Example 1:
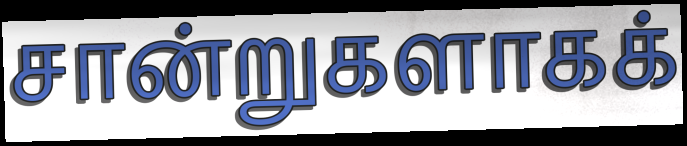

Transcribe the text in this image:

சான்றுகளாகக்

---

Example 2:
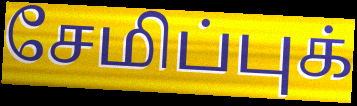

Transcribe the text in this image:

சேமிப்புக்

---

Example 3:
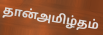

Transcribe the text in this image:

தான்அமிழ்தம்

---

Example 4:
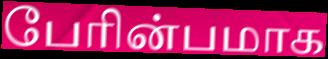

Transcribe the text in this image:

பேரின்பமாக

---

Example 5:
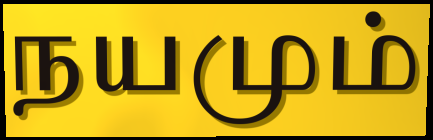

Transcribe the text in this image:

நயமும்